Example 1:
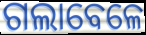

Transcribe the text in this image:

ଗଲାବେଳେ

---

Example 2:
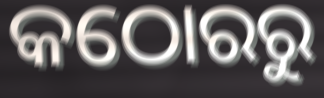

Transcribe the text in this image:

କଠୋରରୁ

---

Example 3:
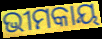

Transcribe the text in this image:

ଭୀମକାୟ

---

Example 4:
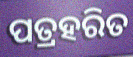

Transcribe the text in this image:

ପତ୍ରହରିତ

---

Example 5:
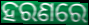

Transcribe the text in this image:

ହରଣରେ